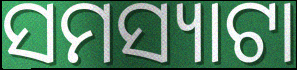
ସମସ୍ୟାଟା